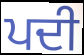
ਪਦੀ